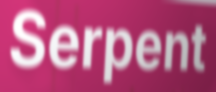
Serpent